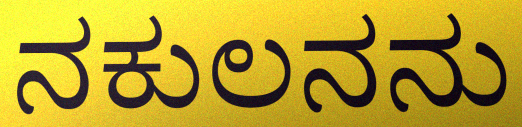
ನಕುಲನನು